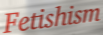
Fetishism